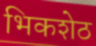
भिकशेठ